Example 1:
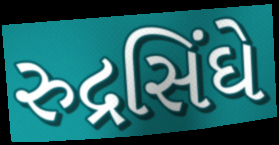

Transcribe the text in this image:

રુદ્રસિંઘે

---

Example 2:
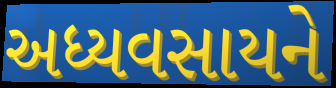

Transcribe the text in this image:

અધ્યવસાયને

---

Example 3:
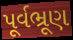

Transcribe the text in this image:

પૂર્વભ્રૂણ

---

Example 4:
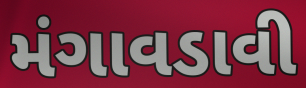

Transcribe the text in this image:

મંગાવડાવી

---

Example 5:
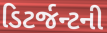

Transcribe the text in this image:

ડિટર્જન્ટની